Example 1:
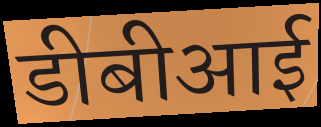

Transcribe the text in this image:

डीबीआई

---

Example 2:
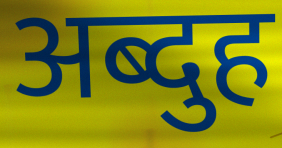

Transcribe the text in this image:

अब्दुह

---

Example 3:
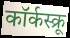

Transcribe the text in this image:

कॉर्कस्क्रू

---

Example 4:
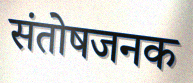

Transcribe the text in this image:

संतोषजनक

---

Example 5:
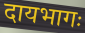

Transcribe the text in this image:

दायभागः